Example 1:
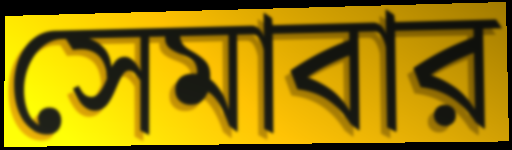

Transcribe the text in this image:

সেমাবার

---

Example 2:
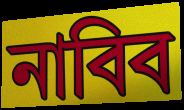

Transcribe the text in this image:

নাবিব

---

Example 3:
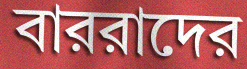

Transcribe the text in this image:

বাররাদের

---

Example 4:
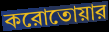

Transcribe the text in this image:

করোতোয়ার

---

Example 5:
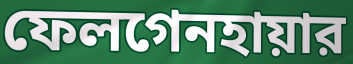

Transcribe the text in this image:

ফেলগেনহায়ার